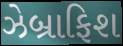
ઝેબ્રાફિશ